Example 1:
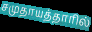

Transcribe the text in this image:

சமுதாயத்தாரில்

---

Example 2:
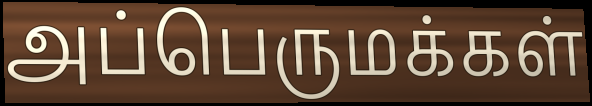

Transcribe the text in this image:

அப்பெருமக்கள்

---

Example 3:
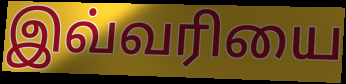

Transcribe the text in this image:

இவ்வரியை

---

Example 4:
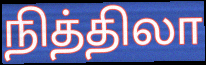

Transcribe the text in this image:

நித்திலா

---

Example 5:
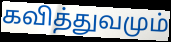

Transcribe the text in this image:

கவித்துவமும்